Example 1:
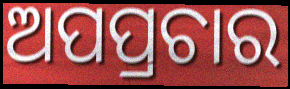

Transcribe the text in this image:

ଅପପ୍ରଚାର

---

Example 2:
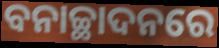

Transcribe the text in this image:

ବନାଚ୍ଛାଦନରେ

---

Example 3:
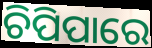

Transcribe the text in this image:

ଚିପିପାରେ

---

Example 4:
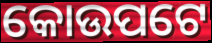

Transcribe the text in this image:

କୋଉପଟେ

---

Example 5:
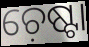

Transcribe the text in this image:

ଚ଼େଷ୍ଟା